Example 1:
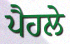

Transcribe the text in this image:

ਪੈਹਲੇ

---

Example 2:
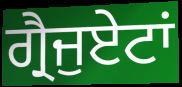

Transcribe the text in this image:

ਗ੍ਰੈਜੁਏਟਾਂ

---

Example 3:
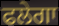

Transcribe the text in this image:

ਫਲੇਗਾ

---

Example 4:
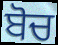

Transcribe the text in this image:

ਬੋਚ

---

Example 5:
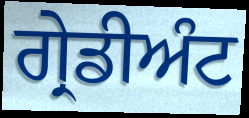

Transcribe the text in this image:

ਗ੍ਰੇਡੀਅੰਟ